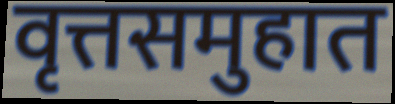
वृत्तसमुहात